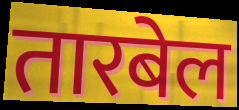
तारबेल